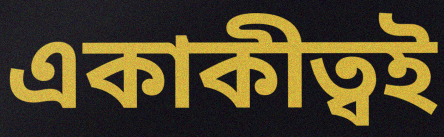
একাকীত্বই